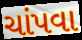
ચાંપવા